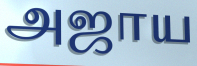
அஜாய